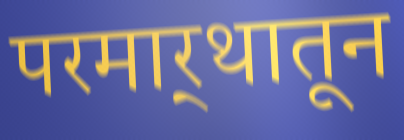
परमार्थातून